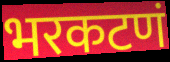
भरकटणं